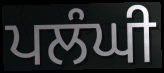
ਪਲੰਘੀ